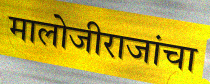
मालोजीराजांचा